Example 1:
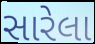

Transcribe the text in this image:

સારેલા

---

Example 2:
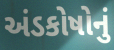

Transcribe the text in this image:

અંડકોષોનું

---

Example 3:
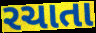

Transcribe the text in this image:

રચાતા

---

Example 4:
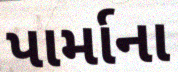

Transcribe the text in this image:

પાર્માના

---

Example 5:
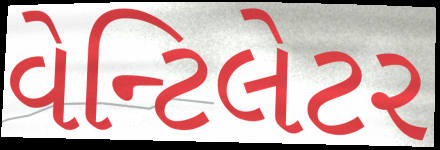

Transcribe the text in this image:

વેન્‍ટિલેટર